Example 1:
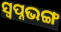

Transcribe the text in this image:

ସ୍ୱପ୍ନଭଙ୍ଗ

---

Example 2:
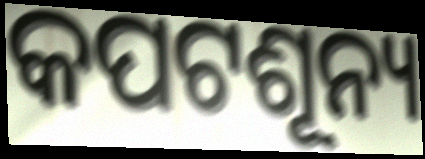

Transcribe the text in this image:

କପଟଶୂନ୍ୟ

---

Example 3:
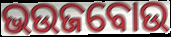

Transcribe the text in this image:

ଭଉଜବୋଉ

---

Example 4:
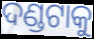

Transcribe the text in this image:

ଦଣ୍ଡଟାକୁ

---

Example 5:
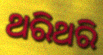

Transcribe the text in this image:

ଥରିଥରି